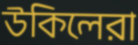
উকিলেরা